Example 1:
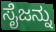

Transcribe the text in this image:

ಸೈಜನ್ನು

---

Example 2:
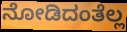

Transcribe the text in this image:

ನೋಡಿದಂತೆಲ್ಲ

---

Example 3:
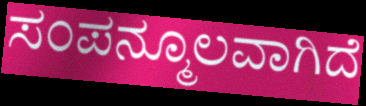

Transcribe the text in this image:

ಸಂಪನ್ಮೂಲವಾಗಿದೆ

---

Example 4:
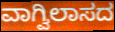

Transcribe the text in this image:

ವಾಗ್ವಿಲಾಸದ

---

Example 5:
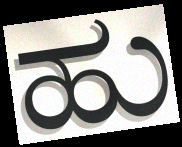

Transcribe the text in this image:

ಹು